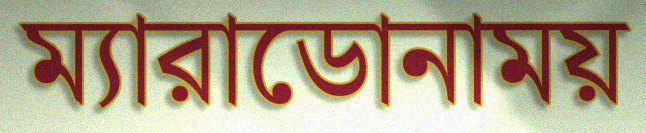
ম্যারাডোনাময়